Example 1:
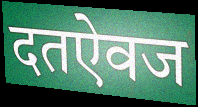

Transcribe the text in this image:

दतऐवज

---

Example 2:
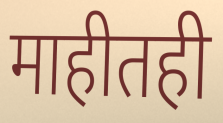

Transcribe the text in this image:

माहीतही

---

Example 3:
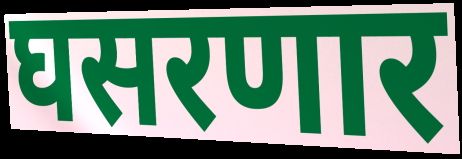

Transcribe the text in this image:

घसरणार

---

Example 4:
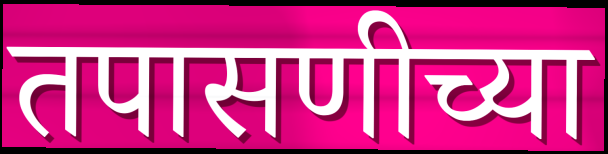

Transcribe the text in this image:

तपासणीच्या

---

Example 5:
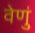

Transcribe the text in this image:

वेणुं